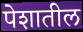
पेशातील